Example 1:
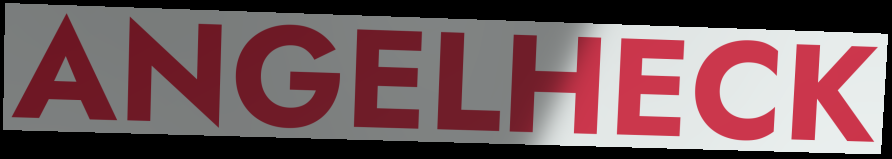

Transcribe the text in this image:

ANGELHECK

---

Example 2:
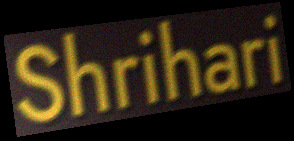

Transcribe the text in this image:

Shrihari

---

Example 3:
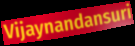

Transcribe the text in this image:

Vijaynandansuri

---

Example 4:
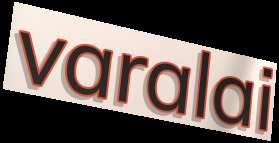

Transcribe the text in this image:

varalai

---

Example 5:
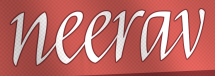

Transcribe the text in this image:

neerav